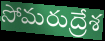
సోమరుద్రేశ